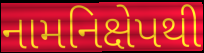
નામનિક્ષેપથી